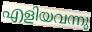
എളിയവന്നു